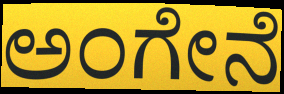
ಅಂಗೇನೆ